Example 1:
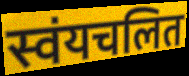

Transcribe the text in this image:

स्वंयचलित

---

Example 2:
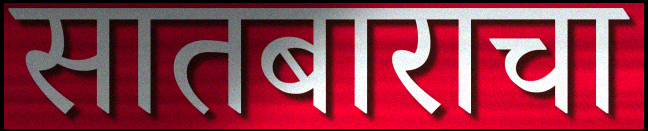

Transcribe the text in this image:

सातबाराचा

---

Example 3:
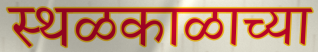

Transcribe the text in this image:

स्थळकाळाच्या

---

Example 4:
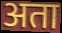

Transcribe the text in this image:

अता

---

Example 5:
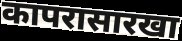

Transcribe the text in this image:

कापरासारखा